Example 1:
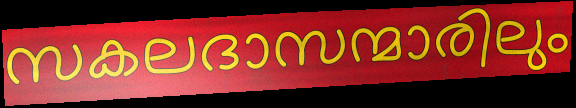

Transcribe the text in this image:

സകലദാസന്മാരിലും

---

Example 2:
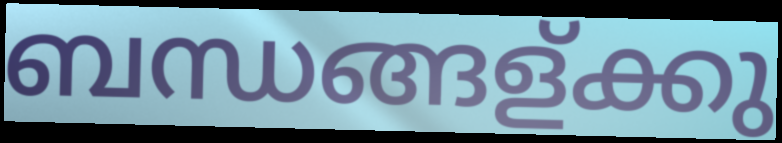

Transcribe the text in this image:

ബന്ധങ്ങള്ക്കു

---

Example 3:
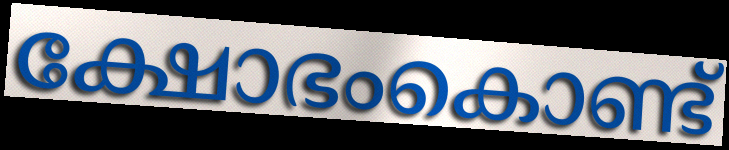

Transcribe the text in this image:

ക്ഷോഭംകൊണ്ട്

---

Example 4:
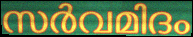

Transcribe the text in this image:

സർവമിദം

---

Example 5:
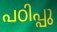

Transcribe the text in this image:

പഠിപ്പു